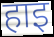
हाइ